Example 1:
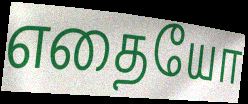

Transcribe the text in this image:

எதையோ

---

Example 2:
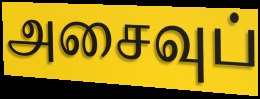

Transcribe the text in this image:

அசைவுப்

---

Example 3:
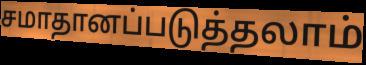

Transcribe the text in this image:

சமாதானப்படுத்தலாம்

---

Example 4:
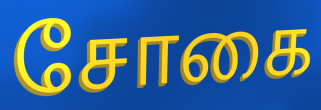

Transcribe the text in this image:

சோகை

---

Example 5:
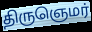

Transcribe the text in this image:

திருஞெமர்